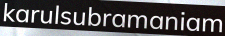
karulsubramaniam